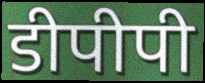
डीपीपी